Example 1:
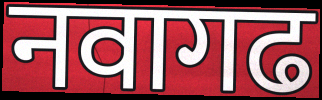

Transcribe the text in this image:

नवागढ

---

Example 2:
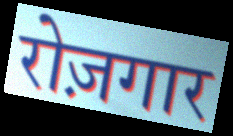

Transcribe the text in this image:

रोज़गार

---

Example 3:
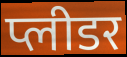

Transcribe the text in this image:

प्लीडर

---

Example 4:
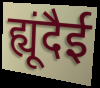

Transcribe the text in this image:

ह्यूंदैई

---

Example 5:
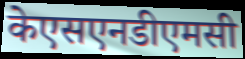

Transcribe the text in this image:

केएसएनडीएमसी